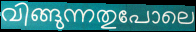
വിങ്ങുന്നതുപോലെ